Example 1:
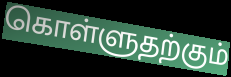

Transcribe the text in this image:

கொள்ளுதற்கும்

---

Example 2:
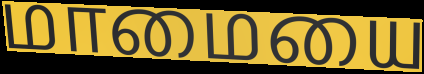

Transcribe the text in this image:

மாமையை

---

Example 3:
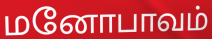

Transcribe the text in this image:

மனோபாவம்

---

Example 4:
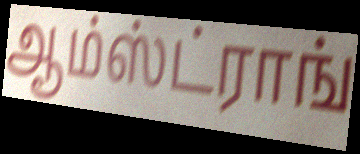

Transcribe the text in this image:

ஆம்ஸ்ட்ராங்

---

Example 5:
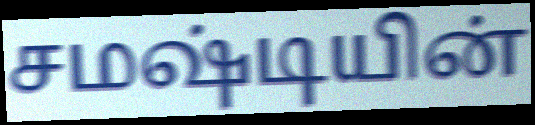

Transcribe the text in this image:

சமஷ்டியின்